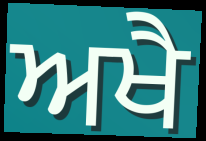
ਅਖੈ